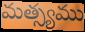
మత్స్యము